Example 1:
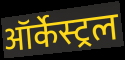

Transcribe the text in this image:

ऑर्केस्ट्रल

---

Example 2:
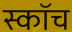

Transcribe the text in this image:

स्कॉच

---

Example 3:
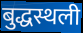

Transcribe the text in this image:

बुद्धस्थली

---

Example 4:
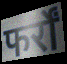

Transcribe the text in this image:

फर्रों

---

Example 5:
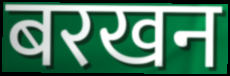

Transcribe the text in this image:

बरखन